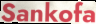
Sankofa